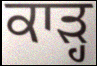
ਕਾੜ੍ਹ